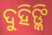
ଦୁହିଙ୍କି